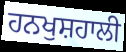
ਹਨਖੁਸ਼ਹਾਲੀ